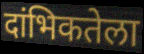
दांभिकतेला